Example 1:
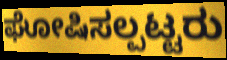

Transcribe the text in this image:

ಘೋಷಿಸಲ್ಪಟ್ಟರು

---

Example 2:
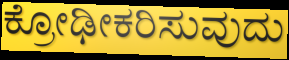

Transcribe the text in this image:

ಕ್ರೋಢೀಕರಿಸುವುದು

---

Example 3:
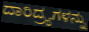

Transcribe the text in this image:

ದಾರಿದ್ರ್ಯಗಳನ್ನು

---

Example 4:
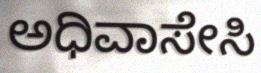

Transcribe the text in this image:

ಅಧಿವಾಸೇಸಿ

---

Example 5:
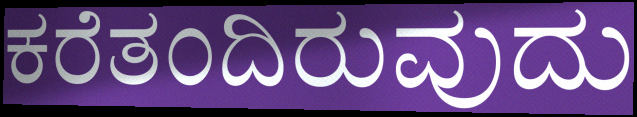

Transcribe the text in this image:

ಕರೆತಂದಿರುವುದು